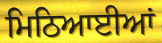
ਮਿਠਿਆਈਆਂ